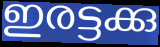
ഇരട്ടക്കു